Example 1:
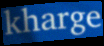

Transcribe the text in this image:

kharge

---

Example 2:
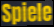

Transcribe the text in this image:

Spiele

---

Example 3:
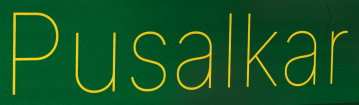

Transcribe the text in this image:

Pusalkar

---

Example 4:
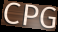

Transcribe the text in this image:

CPG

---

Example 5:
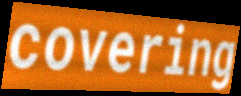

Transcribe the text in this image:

covering